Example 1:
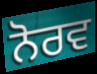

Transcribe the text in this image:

ਨੋਰਵ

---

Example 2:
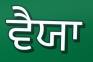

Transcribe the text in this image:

ਵੈਯਾ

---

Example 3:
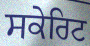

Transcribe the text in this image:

ਸਕੇਰਿਟ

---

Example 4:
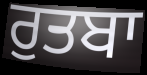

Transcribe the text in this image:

ਰੁਤਬਾ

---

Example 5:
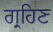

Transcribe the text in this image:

ਗ੍ਰਹਿਣ